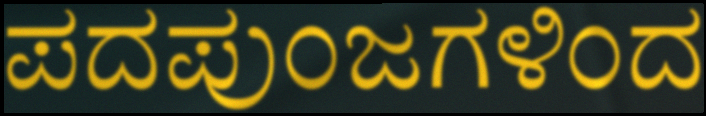
ಪದಪುಂಜಗಳಿಂದ